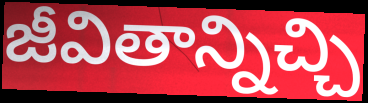
జీవితాన్నిచ్చి